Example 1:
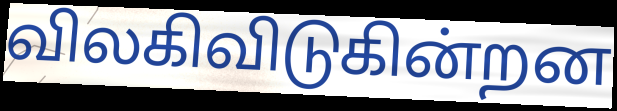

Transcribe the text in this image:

விலகிவிடுகின்றன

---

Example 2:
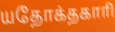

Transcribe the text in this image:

யதோக்தகாரி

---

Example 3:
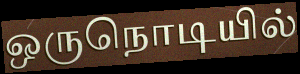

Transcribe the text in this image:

ஒருநொடியில்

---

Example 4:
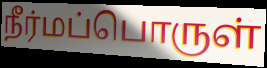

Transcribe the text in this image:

நீர்மப்பொருள்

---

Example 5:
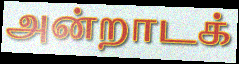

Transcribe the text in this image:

அன்றாடக்